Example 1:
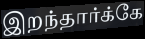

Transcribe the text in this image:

இறந்தார்க்கே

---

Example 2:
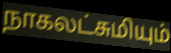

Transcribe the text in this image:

நாகலட்சுமியும்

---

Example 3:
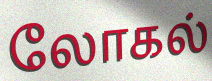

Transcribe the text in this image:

லோகல்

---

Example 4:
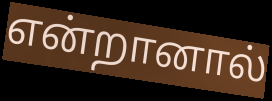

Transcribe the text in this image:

என்றானால்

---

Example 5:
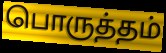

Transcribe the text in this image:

பொருத்தம்